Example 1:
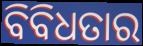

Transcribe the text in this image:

ବିବିଧତାର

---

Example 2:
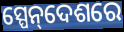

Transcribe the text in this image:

ସ୍ପେନ୍‌ଦେଶରେ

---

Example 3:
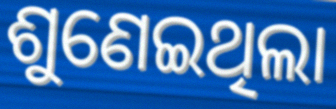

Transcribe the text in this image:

ଶୁଣେଇଥିଲା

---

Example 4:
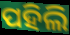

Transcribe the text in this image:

ପହିଲି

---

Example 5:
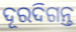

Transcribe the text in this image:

ଦୂରଦିଗନ୍ତ